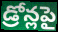
డ్రోన్లపై